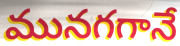
మునగగానే